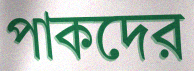
পাকদের